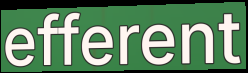
efferent